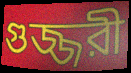
গুজ্জরী